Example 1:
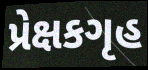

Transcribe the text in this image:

પ્રેક્ષકગૃહ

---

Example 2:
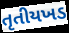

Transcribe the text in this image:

તૃતીયખડ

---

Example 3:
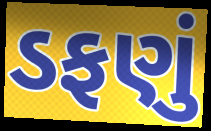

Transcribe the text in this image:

ડફણું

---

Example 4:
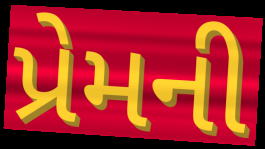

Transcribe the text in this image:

પ્રેમની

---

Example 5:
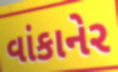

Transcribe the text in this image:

વાંકાનેર